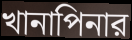
খানাপিনার